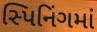
સ્પિનિંગમાં